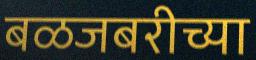
बळजबरीच्या